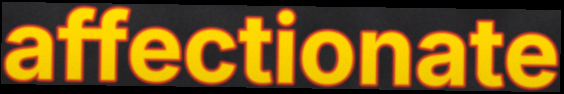
affectionate